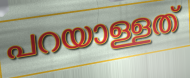
പറയാള്ളത്